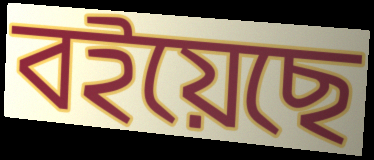
বইয়েছে